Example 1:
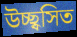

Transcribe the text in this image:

উচ্ছ্বসিত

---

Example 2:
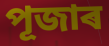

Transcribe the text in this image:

পূজাৰ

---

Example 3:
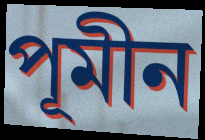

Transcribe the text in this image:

পূমীন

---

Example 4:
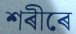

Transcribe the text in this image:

শৰীৰে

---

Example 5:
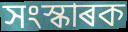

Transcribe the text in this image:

সংস্কাৰক